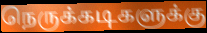
நெருக்கடிகளுக்கு